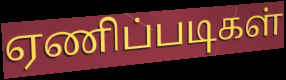
ஏணிப்படிகள்